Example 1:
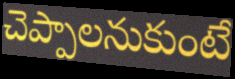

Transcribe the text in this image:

చెప్పాలనుకుంటే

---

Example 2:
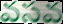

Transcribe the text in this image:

వసవ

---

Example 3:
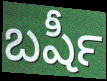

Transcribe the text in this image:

బషీర్‍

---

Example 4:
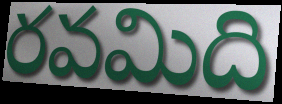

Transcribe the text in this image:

రవమిది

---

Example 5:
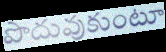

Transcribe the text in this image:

పొదువుకుంటూ